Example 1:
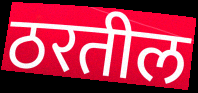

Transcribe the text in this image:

ठरतील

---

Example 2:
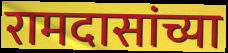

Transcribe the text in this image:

रामदासांच्या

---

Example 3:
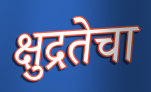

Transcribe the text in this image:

क्षुद्रतेचा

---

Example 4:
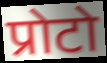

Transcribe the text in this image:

प्रोटो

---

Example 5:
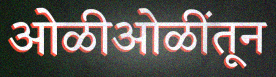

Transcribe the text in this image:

ओळीओळींतून